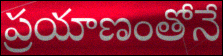
ప్రయాణంతోనే